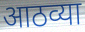
आठव्या